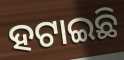
ହଟାଇଛି